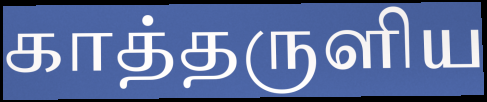
காத்தருளிய